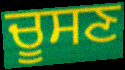
ਚੂਸਣ